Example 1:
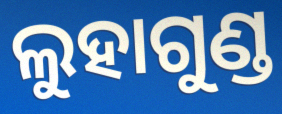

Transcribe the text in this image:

ଲୁହାଗୁଣ୍ଡ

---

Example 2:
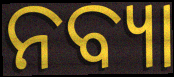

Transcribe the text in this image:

ନବ୍ୟା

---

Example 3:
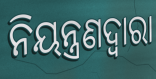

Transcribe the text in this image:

ନିୟନ୍ତ୍ରଣଦ୍ବାରା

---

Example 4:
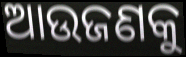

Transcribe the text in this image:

ଆଉଜଣକୁ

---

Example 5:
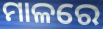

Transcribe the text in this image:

ମାଳରେ